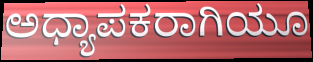
ಅಧ್ಯಾಪಕರಾಗಿಯೂ